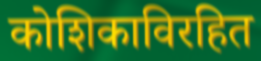
कोशिकाविरहित